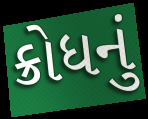
ક્રોધનું